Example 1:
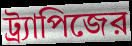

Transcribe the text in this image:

ট্র্যাপিজের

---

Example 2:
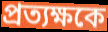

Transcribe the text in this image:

প্রত্যক্ষকে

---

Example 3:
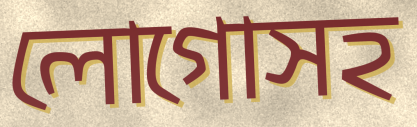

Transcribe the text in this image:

লোগোসহ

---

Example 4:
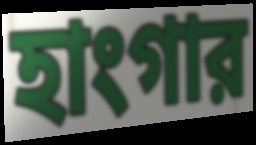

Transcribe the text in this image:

হাংগার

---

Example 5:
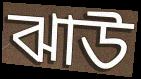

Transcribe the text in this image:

ঝাউ